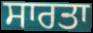
ਸਾਰਤਾ